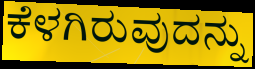
ಕೆಳಗಿರುವುದನ್ನು